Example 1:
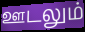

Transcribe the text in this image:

ஊடலும்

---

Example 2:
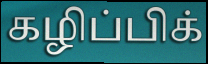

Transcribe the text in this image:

கழிப்பிக்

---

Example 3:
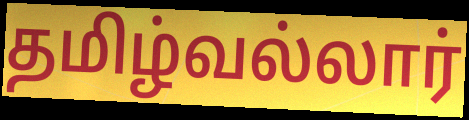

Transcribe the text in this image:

தமிழ்வல்லார்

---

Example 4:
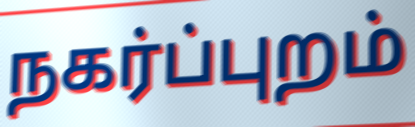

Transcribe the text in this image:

நகர்ப்புறம்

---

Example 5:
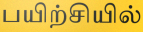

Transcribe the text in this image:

பயிற்சியில்